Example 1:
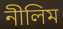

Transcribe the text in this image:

নীলিম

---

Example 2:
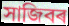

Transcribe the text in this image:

সাজিবৰ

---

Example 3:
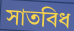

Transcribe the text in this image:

সাতবিধ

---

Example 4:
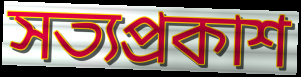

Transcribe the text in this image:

সত্যপ্ৰকাশ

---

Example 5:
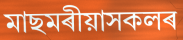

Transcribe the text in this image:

মাছমৰীয়াসকলৰ